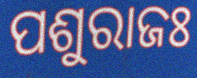
ପଶୁରାଜଃ